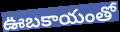
ఊబకాయంతో